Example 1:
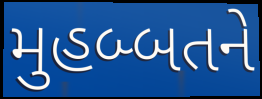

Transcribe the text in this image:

મુહબ્બતને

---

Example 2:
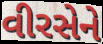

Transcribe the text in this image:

વીરસેને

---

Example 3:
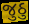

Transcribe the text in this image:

જુઠુ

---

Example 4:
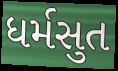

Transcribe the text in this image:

ધર્મસુત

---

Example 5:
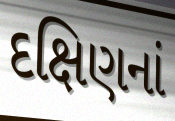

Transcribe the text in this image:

દક્ષિણનાં